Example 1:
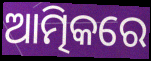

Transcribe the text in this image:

ଆତ୍ମିକରେ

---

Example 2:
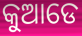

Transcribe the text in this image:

କୁଆଡେ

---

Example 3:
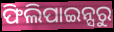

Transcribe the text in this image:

ଫିଲିପାଇନ୍ସରୁ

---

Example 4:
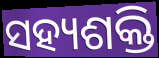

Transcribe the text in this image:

ସହ୍ୟଶକ୍ତି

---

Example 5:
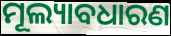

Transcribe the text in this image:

ମୂଲ୍ୟାବଧାରଣ